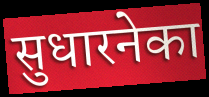
सुधारनेका